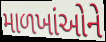
માળખાંઓને